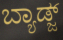
ಬ್ಯಾಡ್ಜ್